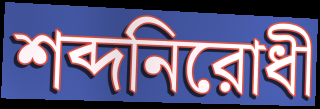
শব্দনিরোধী